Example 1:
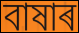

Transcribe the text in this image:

বাষাৰ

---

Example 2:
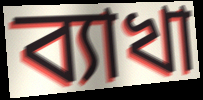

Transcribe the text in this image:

ব্যাখা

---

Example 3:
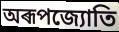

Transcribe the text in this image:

অৰূপজ্যোতি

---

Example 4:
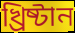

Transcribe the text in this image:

খ্ৰিষ্টান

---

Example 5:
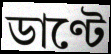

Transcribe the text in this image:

ডাণ্টে